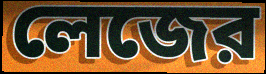
লেজের